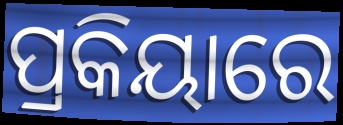
ପ୍ରକିୟାରେ